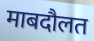
माबदौलत